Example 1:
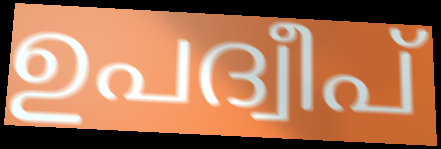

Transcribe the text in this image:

ഉപദ്വീപ്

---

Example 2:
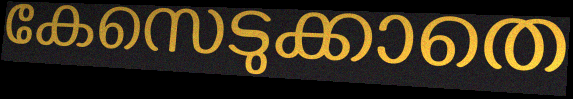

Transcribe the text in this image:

കേസെടുക്കാതെ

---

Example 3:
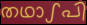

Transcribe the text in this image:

തഥാഽപി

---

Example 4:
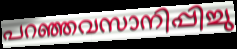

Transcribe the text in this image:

പറഞ്ഞവസാനിപ്പിച്ചു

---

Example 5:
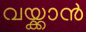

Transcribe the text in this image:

വയ്ക്കാൻ